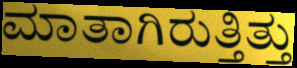
ಮಾತಾಗಿರುತ್ತಿತ್ತು